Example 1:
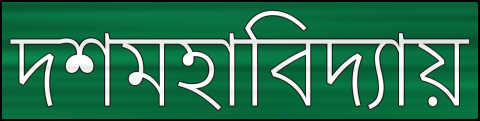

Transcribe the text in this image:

দশমহাবিদ্যায়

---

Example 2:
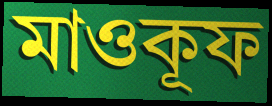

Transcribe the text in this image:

মাওকূফ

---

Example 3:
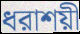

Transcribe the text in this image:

ধরাশয়ী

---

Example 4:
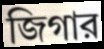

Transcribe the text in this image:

জিগার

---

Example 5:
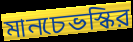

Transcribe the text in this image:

মানচেভস্কির